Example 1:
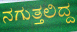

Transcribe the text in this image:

ನಗುತ್ತಲಿದ್ದ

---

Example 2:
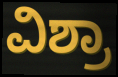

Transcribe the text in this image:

ವಿಶ್ರಾ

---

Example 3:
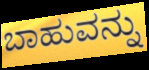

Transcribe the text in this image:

ಬಾಹುವನ್ನು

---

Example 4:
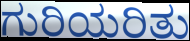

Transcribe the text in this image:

ಗುರಿಯರಿತು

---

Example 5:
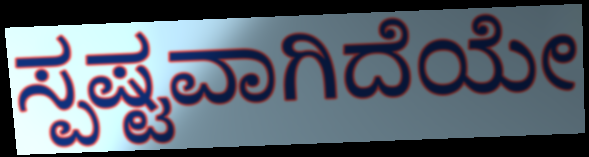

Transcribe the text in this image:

ಸ್ಪಷ್ಟವಾಗಿದೆಯೇ